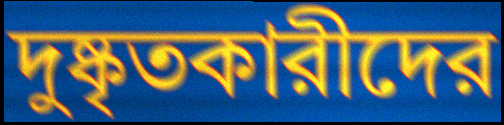
দুষ্কৃতকারীদের